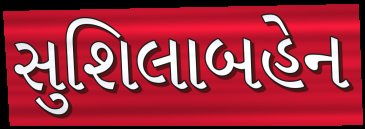
સુશિલાબહેન